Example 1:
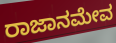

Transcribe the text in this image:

ರಾಜಾನಮೇವ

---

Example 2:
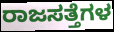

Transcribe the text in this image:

ರಾಜಸತ್ತೆಗಳ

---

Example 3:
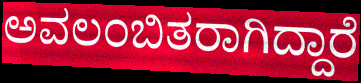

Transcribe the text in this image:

ಅವಲಂಬಿತರಾಗಿದ್ದಾರೆ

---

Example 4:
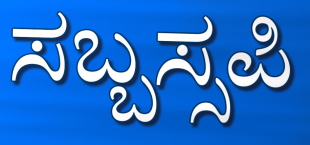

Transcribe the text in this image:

ಸಬ್ಬಸ್ಸಪಿ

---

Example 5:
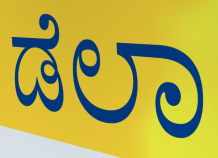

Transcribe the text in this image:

ಡೆಲಾ